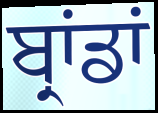
ਬ੍ਰਾਂਡਾਂ